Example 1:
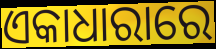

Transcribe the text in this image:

ଏକାଧାରାରେ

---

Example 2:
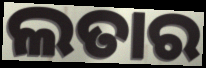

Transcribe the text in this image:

ଲତାର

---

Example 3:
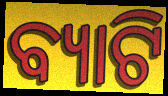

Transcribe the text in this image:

ବ୍ୟାଟି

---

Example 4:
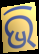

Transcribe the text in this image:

ଭି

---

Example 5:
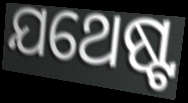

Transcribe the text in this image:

ଯଥେଷ୍ଟ